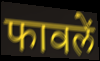
फावलें